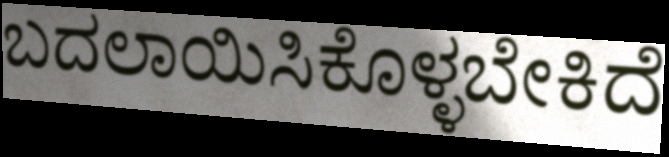
ಬದಲಾಯಿಸಿಕೊಳ್ಳಬೇಕಿದೆ